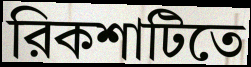
রিকশাটিতে